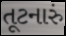
તૂટનારું